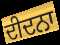
ਦੀਦਨਾ